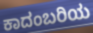
ಕಾದಂಬರಿಯ